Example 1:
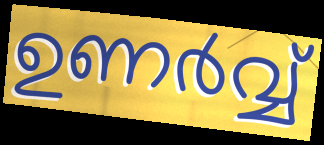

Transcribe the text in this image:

ഉണർവ്വ്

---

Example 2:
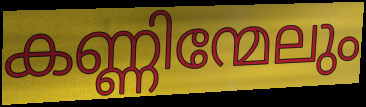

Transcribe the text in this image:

കണ്ണിന്മേലും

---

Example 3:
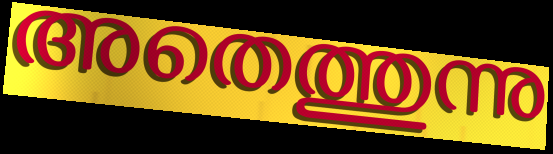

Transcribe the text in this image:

അതെത്തുന്നു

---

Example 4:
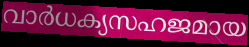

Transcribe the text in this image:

വാർധക്യസഹജമായ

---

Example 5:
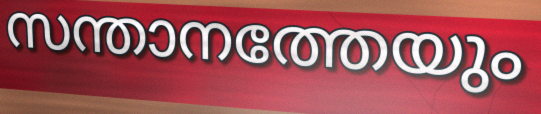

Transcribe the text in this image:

സന്താനത്തേയും